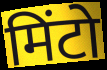
मिंटो